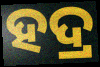
ହଦ୍ର